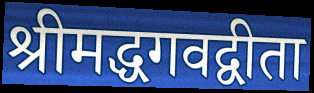
श्रीमद्धगवद्वीता